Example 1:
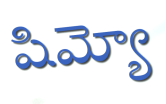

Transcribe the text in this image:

షిమ్యో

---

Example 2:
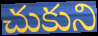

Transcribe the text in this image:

చుకుని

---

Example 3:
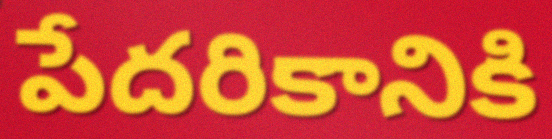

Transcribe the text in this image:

పేదరికానికి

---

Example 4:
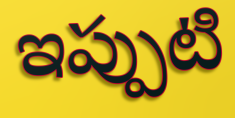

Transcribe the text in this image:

ఇప్పుటి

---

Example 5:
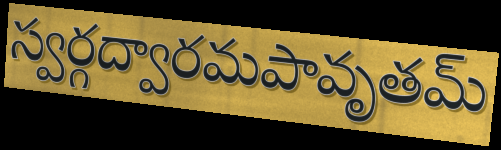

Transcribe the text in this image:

స్వర్గద్వారమపావృతమ్